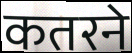
कतरने